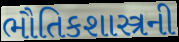
ભૌતિકશાસ્ત્રની